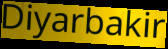
Diyarbakir